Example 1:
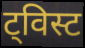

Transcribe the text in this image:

ट्विस्ट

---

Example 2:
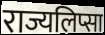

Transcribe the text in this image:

राज्यलिप्सा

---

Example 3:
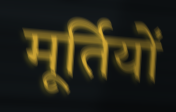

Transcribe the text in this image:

मूर्तियों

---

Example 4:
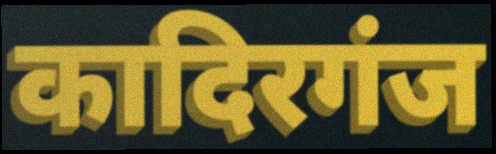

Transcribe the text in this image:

कादिरगंज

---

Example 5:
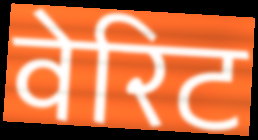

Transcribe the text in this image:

वेरिट